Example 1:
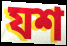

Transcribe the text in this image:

যশ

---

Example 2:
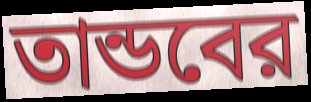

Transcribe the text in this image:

তান্ডবের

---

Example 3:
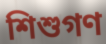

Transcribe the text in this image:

শিশুগণ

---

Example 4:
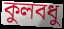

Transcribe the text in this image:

কুলবধু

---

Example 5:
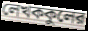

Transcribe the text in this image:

লেখককুলের